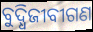
ବୁଦ୍ଧିଜୀବୀଗଣ